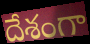
దేశంగా